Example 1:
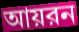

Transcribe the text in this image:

আয়রন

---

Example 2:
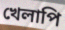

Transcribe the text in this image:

খেলাপি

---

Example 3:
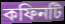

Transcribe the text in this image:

কফিনটি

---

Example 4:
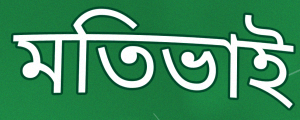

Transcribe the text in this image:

মতিভাই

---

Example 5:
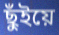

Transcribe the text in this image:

ছুঁইয়ে